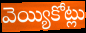
వెయ్యికోట్లు